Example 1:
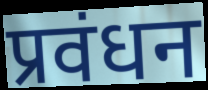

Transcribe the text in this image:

प्रवंधन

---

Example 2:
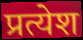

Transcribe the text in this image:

प्रत्येश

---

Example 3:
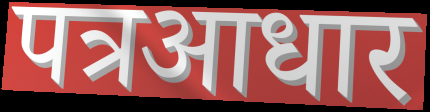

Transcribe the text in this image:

पत्रआधार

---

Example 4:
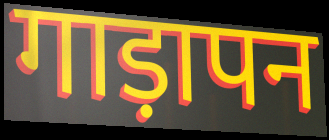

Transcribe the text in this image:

गाड़ापन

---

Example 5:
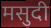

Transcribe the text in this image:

मसुदी